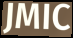
JMIC